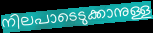
നിലപാടെടുക്കാനുള്ള